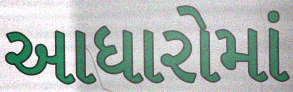
આધારોમાં